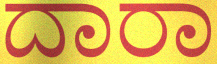
ದಾರಾ